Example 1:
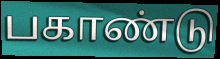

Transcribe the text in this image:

பகாண்டு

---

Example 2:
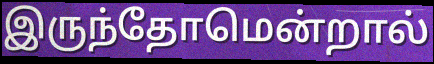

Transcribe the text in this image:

இருந்தோமென்றால்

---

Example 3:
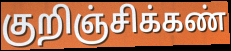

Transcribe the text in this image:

குறிஞ்சிக்கண்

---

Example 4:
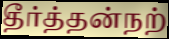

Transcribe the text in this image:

தீர்த்தன்நற்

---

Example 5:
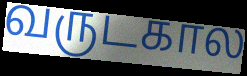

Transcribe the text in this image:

வருடகால